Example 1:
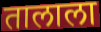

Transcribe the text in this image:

तालाला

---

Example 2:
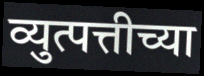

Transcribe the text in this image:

व्युत्पत्तीच्या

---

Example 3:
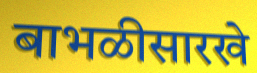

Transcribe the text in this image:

बाभळीसारखे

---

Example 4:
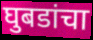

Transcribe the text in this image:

घुबडांचा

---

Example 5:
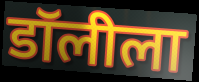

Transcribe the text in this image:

डॉलीला